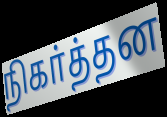
நிகர்த்தன